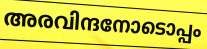
അരവിന്ദനോടൊപ്പം